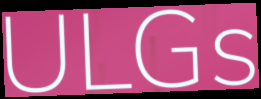
ULGs